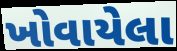
ખોવાયેલા